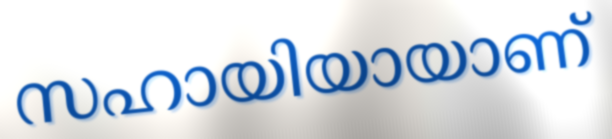
സഹായിയായാണ്